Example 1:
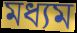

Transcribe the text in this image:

মধ্যম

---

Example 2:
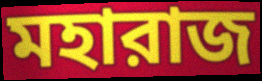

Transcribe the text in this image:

মহারাজ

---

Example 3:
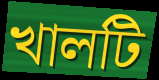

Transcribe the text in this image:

খালটি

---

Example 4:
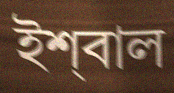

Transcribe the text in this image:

ইশ্‌বাল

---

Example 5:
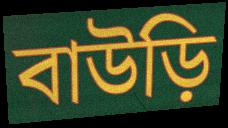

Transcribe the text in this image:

বাউড়ি